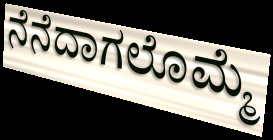
ನೆನೆದಾಗಲೊಮ್ಮೆ